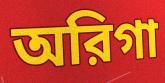
অরিগা